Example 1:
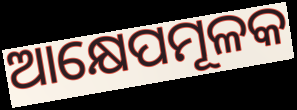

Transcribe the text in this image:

ଆକ୍ଷେପମୂଳକ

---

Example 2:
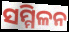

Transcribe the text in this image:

ସମ୍ମିଳନ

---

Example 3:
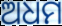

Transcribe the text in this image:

ଅଧମ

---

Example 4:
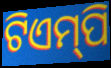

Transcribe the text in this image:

ଟିଏମ୍‌ପି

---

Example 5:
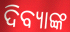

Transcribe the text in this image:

ଦିବ୍ୟାଙ୍କ